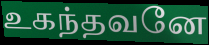
உகந்தவனே